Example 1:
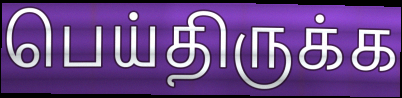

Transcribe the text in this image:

பெய்திருக்க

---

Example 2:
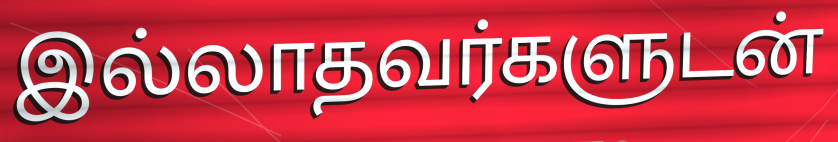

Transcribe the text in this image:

இல்லாதவர்களுடன்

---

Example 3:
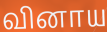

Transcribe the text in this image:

வினாய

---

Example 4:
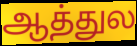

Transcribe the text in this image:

ஆத்துல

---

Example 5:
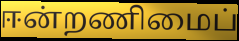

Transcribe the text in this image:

ஈன்றணிமைப்